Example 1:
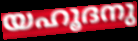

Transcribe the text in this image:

യഹൂദനു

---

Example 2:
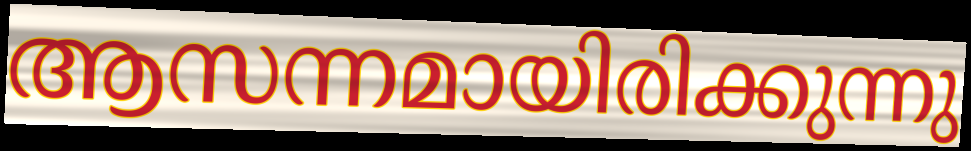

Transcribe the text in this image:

ആസന്നമായിരിക്കുന്നു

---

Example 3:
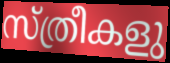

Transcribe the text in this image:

സ്ത്രീകളു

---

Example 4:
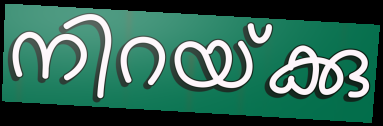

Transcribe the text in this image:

നിറയ്‌ക്കു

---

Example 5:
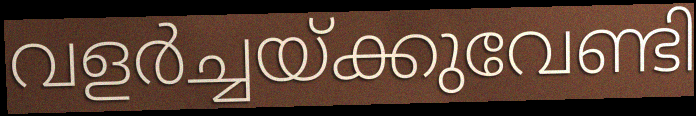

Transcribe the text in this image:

വളർച്ചയ്ക്കുവേണ്ടി